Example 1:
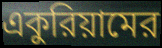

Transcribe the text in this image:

একুরিয়ামের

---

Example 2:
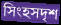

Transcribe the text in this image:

সিংহসদৃশ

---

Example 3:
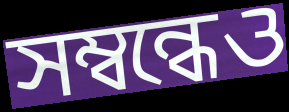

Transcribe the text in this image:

সম্বন্ধেও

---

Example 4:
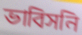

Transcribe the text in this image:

ভাবিসনি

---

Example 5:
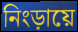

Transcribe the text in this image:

নিংড়ায়ে